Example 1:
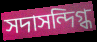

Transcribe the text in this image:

সদাসন্দিগ্ধ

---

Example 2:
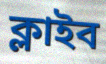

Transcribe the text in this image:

ক্লাইব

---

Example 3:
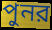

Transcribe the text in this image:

পুনর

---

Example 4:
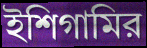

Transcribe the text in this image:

ইশিগামির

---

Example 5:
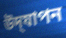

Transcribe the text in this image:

উদ্‌যাপন